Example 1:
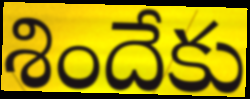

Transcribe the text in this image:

శిందేకు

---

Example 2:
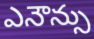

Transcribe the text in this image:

ఎనౌన్సు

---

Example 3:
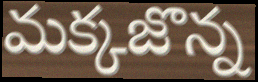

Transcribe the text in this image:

మక్కజొన్న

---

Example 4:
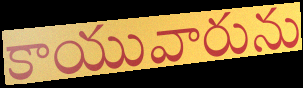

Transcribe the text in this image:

కాయువారును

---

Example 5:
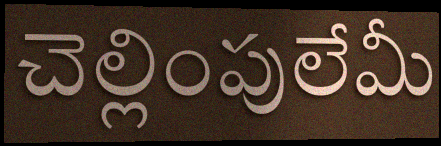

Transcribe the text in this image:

చెల్లింపులేమీ